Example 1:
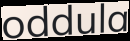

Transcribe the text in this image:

oddula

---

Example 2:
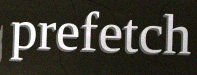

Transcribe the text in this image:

prefetch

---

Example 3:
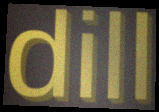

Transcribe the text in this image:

dill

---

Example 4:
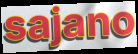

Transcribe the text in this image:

sajano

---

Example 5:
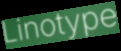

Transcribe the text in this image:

Linotype